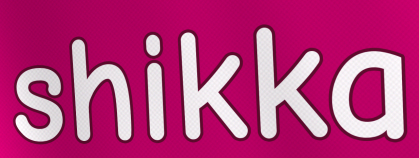
shikka